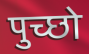
पुच्छो